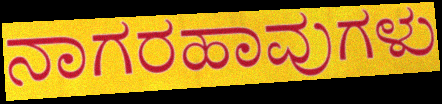
ನಾಗರಹಾವುಗಳು